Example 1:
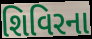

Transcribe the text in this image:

શિવિરના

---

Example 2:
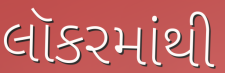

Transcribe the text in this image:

લૉકરમાંથી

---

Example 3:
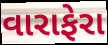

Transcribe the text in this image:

વારાફેરા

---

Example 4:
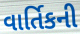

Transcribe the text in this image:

વાર્તિકની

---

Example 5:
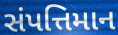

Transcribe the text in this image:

સંપત્તિમાન